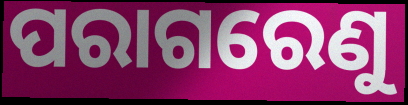
ପରାଗରେଣୁ